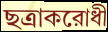
ছত্রাকরোধী